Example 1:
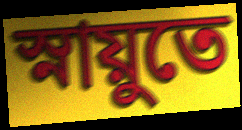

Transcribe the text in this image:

স্নায়ুতে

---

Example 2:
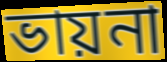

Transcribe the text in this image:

ভায়না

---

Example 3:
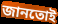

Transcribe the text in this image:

জানতোই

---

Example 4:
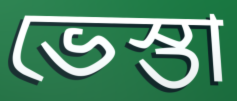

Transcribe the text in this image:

ভেস্তা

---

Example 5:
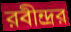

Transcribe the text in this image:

রবীন্দ্রর